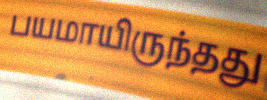
பயமாயிருந்தது